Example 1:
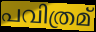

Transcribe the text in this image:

പവിത്രമ്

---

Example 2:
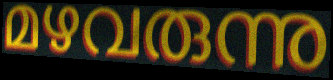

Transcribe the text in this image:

മഴവരുന്നു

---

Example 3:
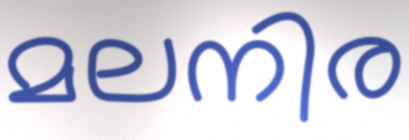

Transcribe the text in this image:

മലനിര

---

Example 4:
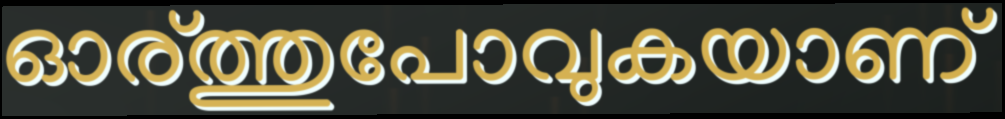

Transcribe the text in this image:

ഓര്ത്തുപോവുകയാണ്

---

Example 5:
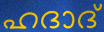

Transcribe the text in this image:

ഹദാദ്